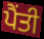
ਪੈਂਤੀ